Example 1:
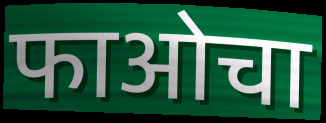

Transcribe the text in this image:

फाओचा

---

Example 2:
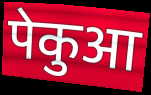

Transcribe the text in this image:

पेकुआ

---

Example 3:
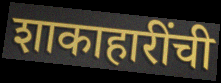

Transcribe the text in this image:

शाकाहारींची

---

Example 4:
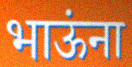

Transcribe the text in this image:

भाऊंना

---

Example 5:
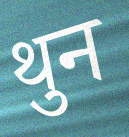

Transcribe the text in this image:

थुन